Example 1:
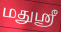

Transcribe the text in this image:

மதுஸ்ரீ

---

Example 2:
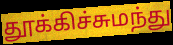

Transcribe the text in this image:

தூக்கிச்சுமந்து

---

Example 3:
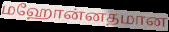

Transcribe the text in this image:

மஹோன்னதமான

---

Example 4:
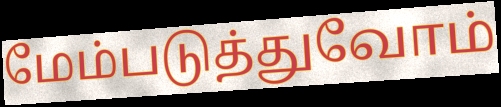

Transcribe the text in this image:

மேம்படுத்துவோம்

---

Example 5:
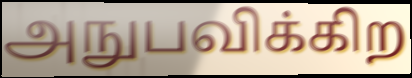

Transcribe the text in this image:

அநுபவிக்கிற